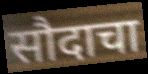
सौदाचा